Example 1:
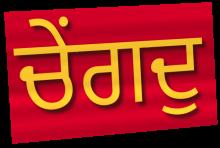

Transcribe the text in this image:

ਚੇਂਗਦੁ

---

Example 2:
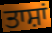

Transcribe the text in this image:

ਤਾਸ਼ਾਂ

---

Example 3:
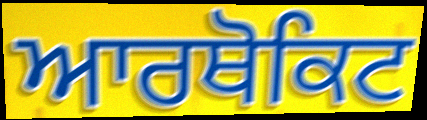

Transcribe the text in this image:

ਆਰਥੋਕਿਟ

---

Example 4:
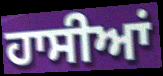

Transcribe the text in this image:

ਹਾਸੀਆਂ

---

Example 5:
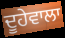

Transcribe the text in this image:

ਦੂਹੇਵਾਲਾ